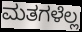
ಮತಗಳೆಲ್ಲ